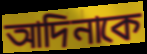
আদিনাকে